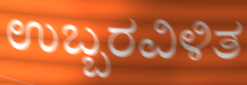
ಉಬ್ಬರವಿಳಿತ